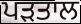
ਪੜਤਾਲ